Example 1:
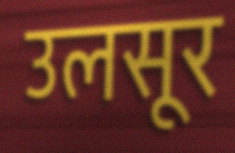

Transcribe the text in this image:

उलसूर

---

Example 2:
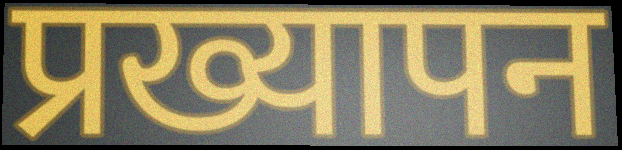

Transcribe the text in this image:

प्रख्यापन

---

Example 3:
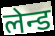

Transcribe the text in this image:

लेन्ड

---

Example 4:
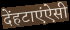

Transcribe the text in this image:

देंहटाएंऐसी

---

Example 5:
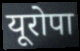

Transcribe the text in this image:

यूरोपा